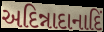
અદિન્નાદાનાદિં